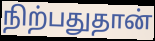
நிற்பதுதான்